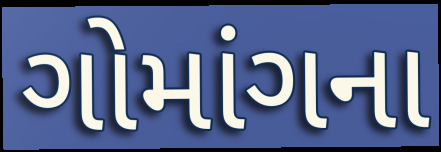
ગોમાંગના